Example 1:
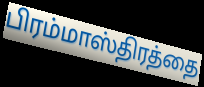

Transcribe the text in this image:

பிரம்மாஸ்திரத்தை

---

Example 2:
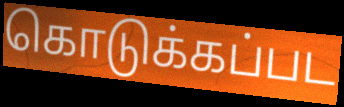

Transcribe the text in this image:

கொடுக்கப்பட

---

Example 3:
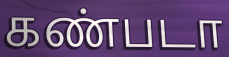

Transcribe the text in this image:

கண்படா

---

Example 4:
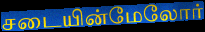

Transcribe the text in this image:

சடையின்மேலோர்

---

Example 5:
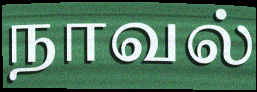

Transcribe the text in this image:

நாவல்